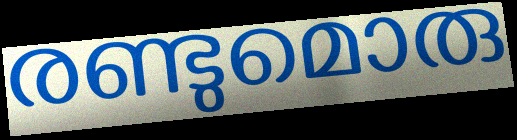
രണ്ടുമൊരു